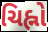
ચિહ્નો